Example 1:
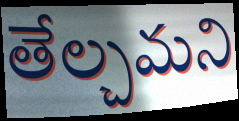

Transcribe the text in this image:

తేల్చమని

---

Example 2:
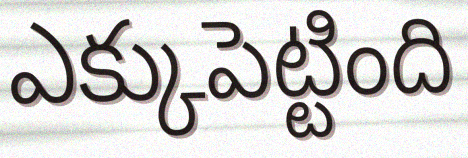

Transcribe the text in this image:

ఎక్కుపెట్టింది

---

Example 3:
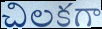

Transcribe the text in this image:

చిలకగా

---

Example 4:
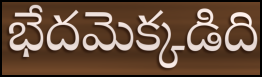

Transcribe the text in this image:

భేదమెక్కడిది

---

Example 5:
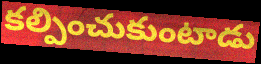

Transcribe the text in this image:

కల్పించుకుంటాడు